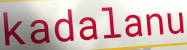
kadalanu